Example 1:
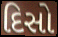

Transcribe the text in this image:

દિસો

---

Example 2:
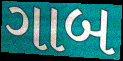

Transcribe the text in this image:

ગાબ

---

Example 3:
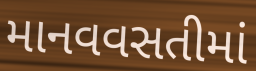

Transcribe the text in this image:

માનવવસતીમાં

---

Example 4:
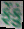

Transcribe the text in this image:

ફેંકું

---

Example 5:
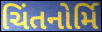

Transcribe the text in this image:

ચિંતનોર્મિ